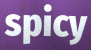
spicy